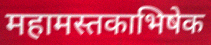
महामस्तकाभिषेक